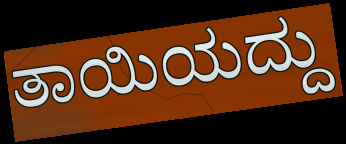
ತಾಯಿಯದ್ದು